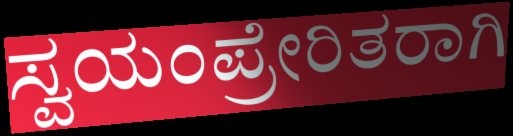
ಸ್ವಯಂಪ್ರೇರಿತರಾಗಿ